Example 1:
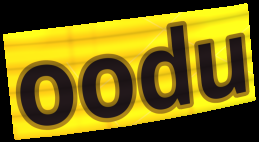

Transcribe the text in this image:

oodu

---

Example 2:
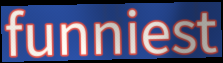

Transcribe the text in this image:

funniest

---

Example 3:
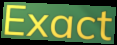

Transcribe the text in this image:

Exact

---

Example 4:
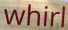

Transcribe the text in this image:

whirl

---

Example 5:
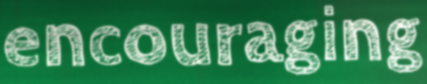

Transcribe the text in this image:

encouraging